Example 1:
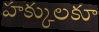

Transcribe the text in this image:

హక్కులకూ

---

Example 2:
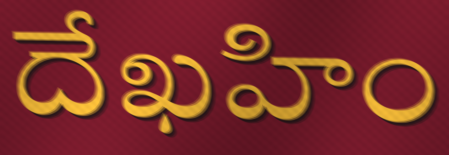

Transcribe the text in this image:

దేఖహిం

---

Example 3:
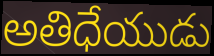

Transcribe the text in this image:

అతిధేయుడు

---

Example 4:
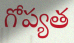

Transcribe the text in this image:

గోప్యత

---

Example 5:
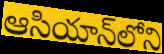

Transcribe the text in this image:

ఆసియాన్‌లోని